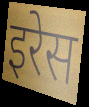
इरेस